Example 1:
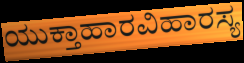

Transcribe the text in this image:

ಯುಕ್ತಾಹಾರವಿಹಾರಸ್ಯ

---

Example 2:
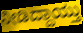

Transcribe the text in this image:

ನೀಡಿದ್ದಾಯ್ತು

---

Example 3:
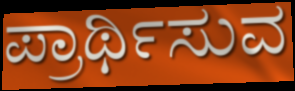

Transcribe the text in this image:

ಪ್ರಾರ್ಥಿಸುವ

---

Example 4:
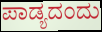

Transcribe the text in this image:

ಪಾಡ್ಯದಂದು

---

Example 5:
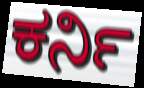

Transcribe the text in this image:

ಕರ್ನಿ